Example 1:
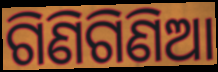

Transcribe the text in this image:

ଗିଣିଗିଣିଆ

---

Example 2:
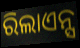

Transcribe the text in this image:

ରିଲାଏନ୍ସ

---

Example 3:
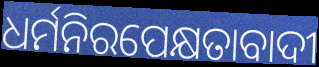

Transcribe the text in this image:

ଧର୍ମନିରପେକ୍ଷତାବାଦୀ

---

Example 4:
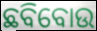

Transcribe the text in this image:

ଛବିବୋଉ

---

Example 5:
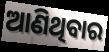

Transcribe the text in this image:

ଆଣିଥିବାର